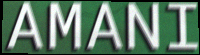
AMANI